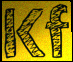
Kf